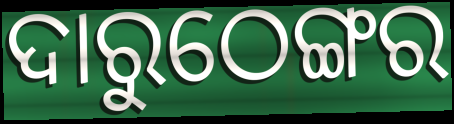
ଦାରୁଠେଙ୍ଗର